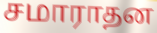
சமாராதன